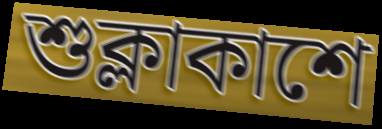
শুক্লাকাশে